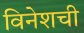
विनेशची